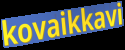
kovaikkavi